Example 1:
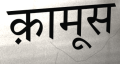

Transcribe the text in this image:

क़ामूस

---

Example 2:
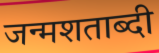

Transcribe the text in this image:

जन्मशताब्दी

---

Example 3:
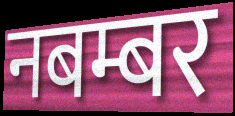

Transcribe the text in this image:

नबम्बर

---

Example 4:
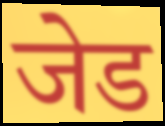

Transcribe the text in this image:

जेड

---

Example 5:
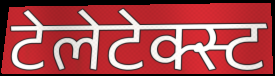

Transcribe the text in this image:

टेलेटेक्स्ट